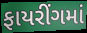
ફાયરીંગમાં